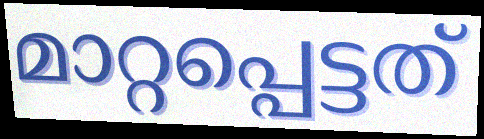
മാറ്റപ്പെട്ടത്